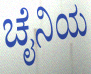
ಚೈನಿಯ